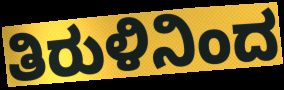
ತಿರುಳಿನಿಂದ